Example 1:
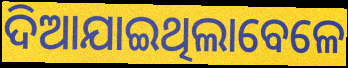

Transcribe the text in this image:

ଦିଆଯାଇଥିଲାବେଳେ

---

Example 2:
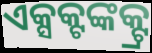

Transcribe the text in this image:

ଏକ୍ସକ୍ଟଙ୍କକ୍ଟ୍ର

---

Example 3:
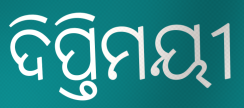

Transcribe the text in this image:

ଦିପ୍ତିମୟୀ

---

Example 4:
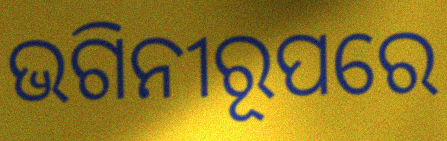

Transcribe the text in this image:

ଭଗିନୀରୂପରେ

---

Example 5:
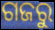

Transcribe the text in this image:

ଗଜରୁ